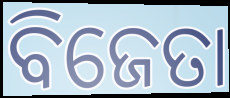
ବିଜେତା